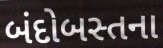
બંદોબસ્તના